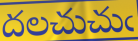
దలచుచుఁ